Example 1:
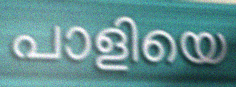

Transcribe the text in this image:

പാളിയെ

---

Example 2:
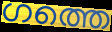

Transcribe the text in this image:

ഗത്തെ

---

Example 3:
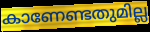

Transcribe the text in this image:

കാണേണ്ടതുമില്ല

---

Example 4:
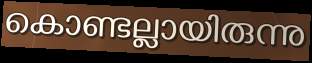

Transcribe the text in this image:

കൊണ്ടല്ലായിരുന്നു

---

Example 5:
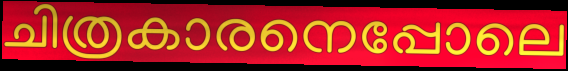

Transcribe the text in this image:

ചിത്രകാരനെപ്പോലെ